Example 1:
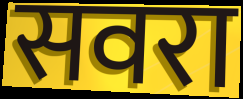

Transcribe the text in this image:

सवरा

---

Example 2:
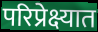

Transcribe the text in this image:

परिप्रेक्ष्यात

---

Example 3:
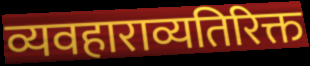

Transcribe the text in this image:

व्यवहाराव्यतिरिक्त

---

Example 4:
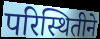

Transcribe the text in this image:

परिस्थितीने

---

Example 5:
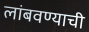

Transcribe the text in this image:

लांबवण्याची